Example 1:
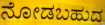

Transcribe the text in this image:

ನೋಡಬಹುದ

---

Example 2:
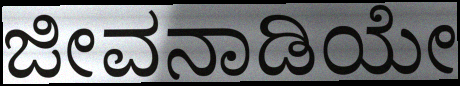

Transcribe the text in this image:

ಜೀವನಾಡಿಯೇ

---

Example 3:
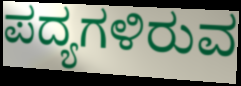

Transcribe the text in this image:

ಪದ್ಯಗಳಿರುವ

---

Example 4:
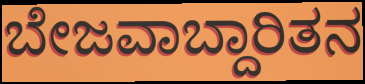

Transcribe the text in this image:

ಬೇಜವಾಬ್ದಾರಿತನ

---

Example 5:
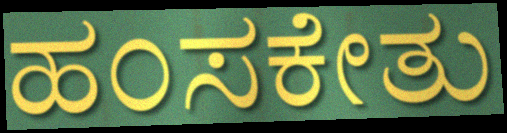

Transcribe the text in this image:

ಹಂಸಕೇತು